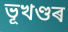
ভূখণ্ডৰ